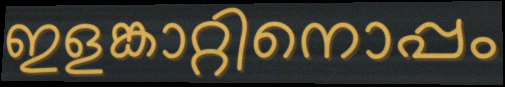
ഇളങ്കാറ്റിനൊപ്പം